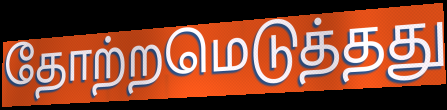
தோற்றமெடுத்தது